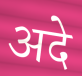
अदे